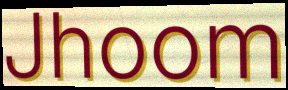
Jhoom